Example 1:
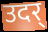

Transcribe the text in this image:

उदर्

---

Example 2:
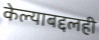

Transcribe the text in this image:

केल्याबद्दलही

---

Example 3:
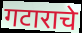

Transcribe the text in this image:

गटाराचे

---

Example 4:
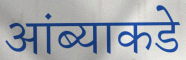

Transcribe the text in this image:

आंब्याकडे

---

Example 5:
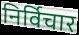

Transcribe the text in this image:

निर्विचार